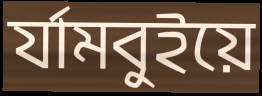
র্যামবুইয়ে